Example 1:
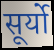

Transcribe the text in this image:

सूर्यो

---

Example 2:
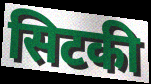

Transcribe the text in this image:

सिटकी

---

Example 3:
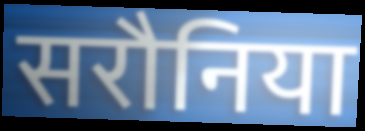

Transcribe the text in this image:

सरौनिया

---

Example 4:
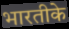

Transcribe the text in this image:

भारतीके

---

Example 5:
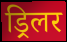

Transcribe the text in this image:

ड्रिलर